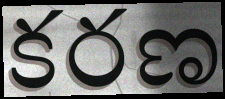
కరణ